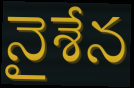
నైశేన